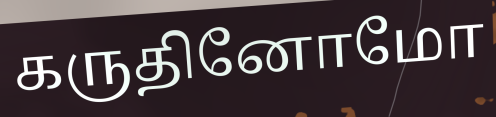
கருதினோமோ